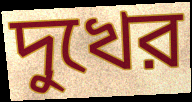
দুখের